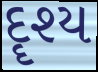
દૄશ્ય